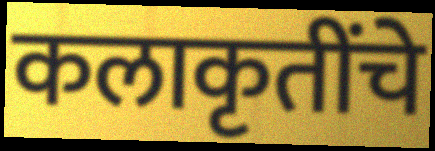
कलाकृतींचे